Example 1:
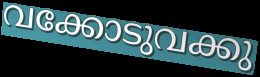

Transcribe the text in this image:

വക്കോടുവക്കു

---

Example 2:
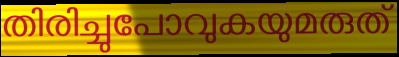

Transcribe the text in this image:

തിരിച്ചുപോവുകയുമരുത്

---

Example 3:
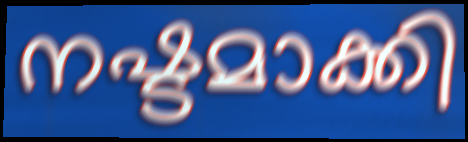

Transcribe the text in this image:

നഷ്ടമാക്കി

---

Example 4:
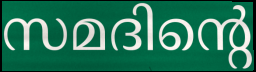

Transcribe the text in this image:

സമദിന്റെ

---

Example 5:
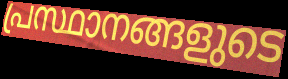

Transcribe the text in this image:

പ്രസ്ഥാനങ്ങളുടെ